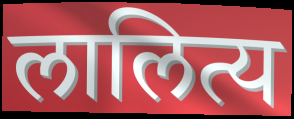
लालित्य